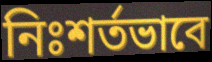
নিঃশর্তভাবে